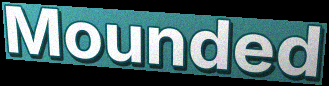
Mounded